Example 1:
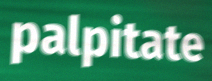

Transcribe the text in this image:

palpitate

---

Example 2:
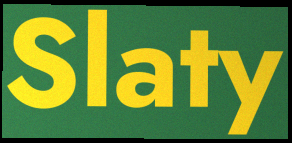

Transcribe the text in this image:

Slaty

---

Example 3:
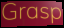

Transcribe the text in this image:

Grasp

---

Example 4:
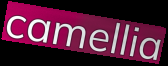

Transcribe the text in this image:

camellia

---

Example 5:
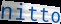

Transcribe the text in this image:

nitto